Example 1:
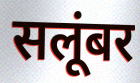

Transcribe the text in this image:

सलूंबर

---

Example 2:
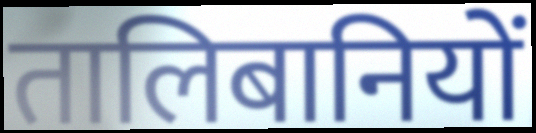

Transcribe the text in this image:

तालिबानियों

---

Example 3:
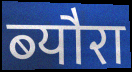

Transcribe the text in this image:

ब्‍यौरा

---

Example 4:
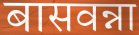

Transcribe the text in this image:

बासवन्ना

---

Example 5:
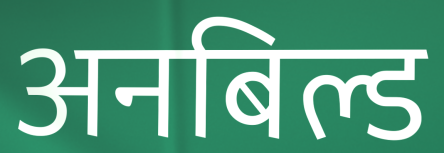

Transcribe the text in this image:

अनबिल्ड